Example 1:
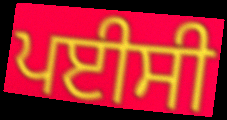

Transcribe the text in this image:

ਪਈਸੀ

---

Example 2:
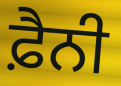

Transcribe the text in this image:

ਫ਼ੈਨੀ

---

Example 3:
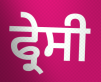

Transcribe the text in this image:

ਫ੍ਰੇਸੀ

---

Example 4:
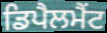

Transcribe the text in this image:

ਡਿਪੈਲਮੈਂਟ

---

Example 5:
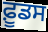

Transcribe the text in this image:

ਫ਼ੂਡਸ